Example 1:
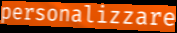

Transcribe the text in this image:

personalizzare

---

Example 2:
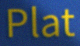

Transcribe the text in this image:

Plat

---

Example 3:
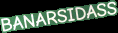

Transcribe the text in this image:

BANARSIDASS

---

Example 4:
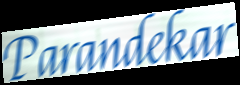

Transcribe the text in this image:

Parandekar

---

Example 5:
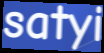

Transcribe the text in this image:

satyi